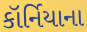
કૉર્નિયાના